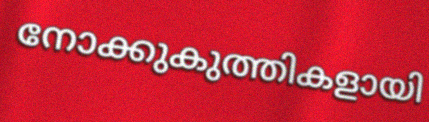
നോക്കുകുത്തികളായി